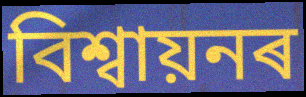
বিশ্ৱায়নৰ